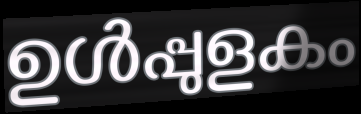
ഉൾപ്പുളകം